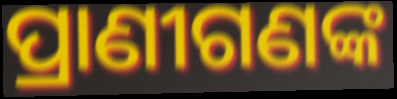
ପ୍ରାଣୀଗଣଙ୍କ